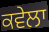
ਕਵੇਲਾ